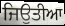
ਜਿਉਤੀਆ